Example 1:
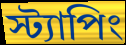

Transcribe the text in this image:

স্ট্যাপিং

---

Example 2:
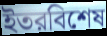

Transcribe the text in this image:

ইতরবিশেষ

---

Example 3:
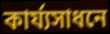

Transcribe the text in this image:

কার্য্যসাধনে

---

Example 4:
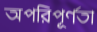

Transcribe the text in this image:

অপরিপূর্ণতা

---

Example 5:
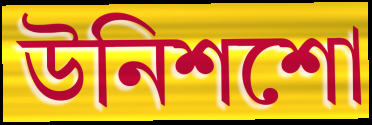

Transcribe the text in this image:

উনিশশো